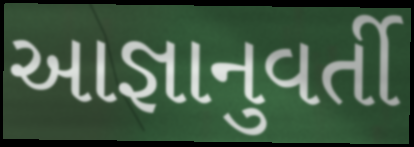
આજ્ઞાનુવર્તી